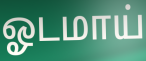
ஓடமாய்